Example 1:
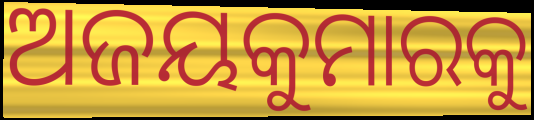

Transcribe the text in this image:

ଅଜୟକୁମାରକୁ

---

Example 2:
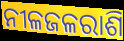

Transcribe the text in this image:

ନୀଳଜଳରାଶି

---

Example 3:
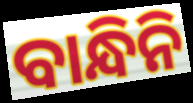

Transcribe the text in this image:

ବାନ୍ଧିନି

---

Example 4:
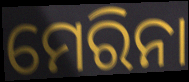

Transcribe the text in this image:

ମେରିନା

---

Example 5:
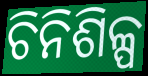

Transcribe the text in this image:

ଚିନିଶିଳ୍ପ